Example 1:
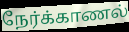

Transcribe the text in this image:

நேர்க்காணல்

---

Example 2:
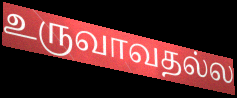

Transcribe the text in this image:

உருவாவதல்ல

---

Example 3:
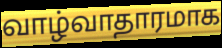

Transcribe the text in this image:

வாழ்வாதாரமாக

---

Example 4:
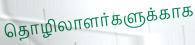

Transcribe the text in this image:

தொழிலாளர்களுக்காக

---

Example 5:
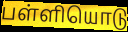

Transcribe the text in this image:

பள்ளியொடு